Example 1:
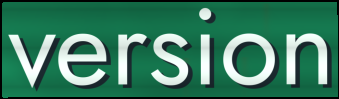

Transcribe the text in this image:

version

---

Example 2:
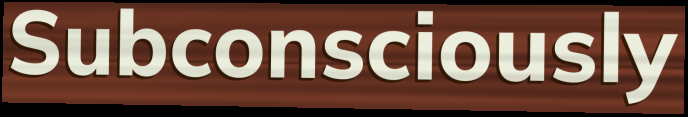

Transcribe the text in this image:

Subconsciously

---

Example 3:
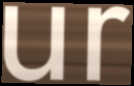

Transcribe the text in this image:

ur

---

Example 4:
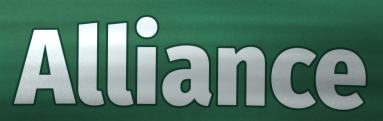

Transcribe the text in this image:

Alliance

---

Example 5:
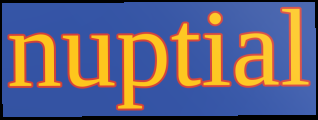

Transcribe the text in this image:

nuptial